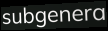
subgenera